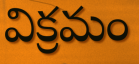
విక్రమం